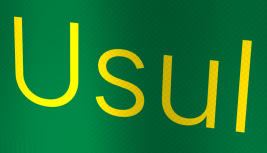
Usul